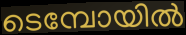
ടെമ്പോയിൽ